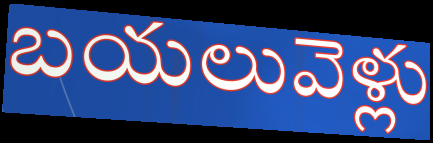
బయలువెళ్లు